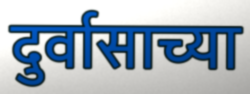
दुर्वासाच्या